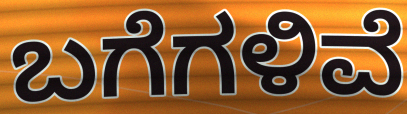
ಬಗೆಗಳಿವೆ